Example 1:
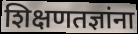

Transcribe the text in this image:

शिक्षणतज्ञांना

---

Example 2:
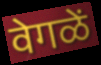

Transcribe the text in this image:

वेगळें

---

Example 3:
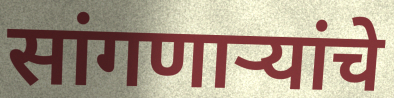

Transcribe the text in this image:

सांगणार्‍यांचे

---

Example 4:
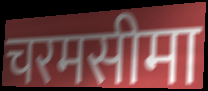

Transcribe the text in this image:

चरमसीमा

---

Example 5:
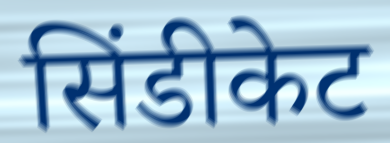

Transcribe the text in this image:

सिंडीकेट